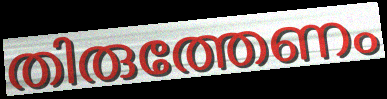
തിരുത്തേണം